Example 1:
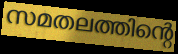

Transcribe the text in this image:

സമതലത്തിന്റെ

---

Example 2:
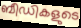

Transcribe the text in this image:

ബീഡികളുടെ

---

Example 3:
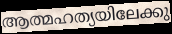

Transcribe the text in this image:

ആത്മഹത്യയിലേക്കു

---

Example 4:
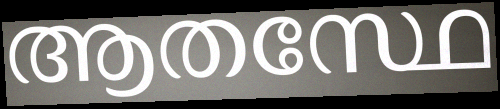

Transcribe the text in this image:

ആതസ്ഥേ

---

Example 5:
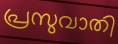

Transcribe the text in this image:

പ്രസുവാതി